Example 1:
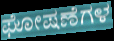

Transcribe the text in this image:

ಘೋಷಣೆಗಳ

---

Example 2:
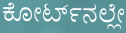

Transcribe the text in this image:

ಕೋರ್ಟ್‌ನಲ್ಲೇ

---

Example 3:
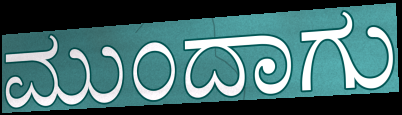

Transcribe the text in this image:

ಮುಂದಾಗು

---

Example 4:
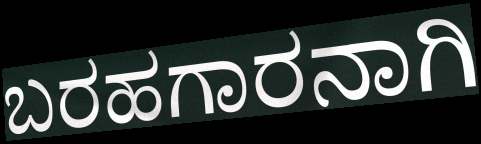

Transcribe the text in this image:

ಬರಹಗಾರನಾಗಿ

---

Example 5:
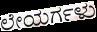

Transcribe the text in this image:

ಲೇಯರ್ಗಳು